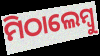
ମିଠାଲେମ୍ବୁ